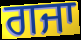
ਗਜਾ